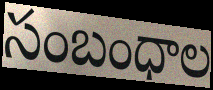
సంబంధాల